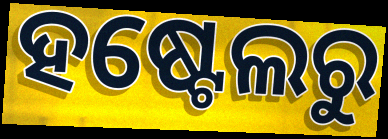
ହଷ୍ଟେଲରୁ